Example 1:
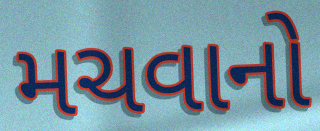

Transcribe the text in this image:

મચવાનો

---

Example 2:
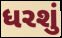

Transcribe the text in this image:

ધરશું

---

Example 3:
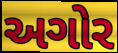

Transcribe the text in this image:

અગોર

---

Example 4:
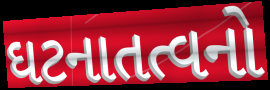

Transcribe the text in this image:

ઘટનાતત્વનો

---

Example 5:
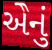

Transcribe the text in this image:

એેનું